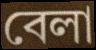
বেলা